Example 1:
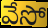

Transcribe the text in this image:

వేసో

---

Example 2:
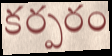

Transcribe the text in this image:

కర్పరం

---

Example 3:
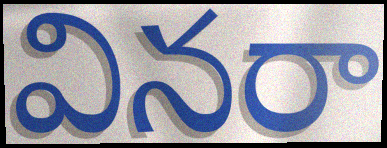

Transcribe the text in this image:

వినరా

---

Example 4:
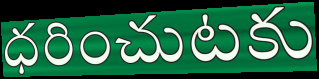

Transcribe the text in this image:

ధరించుటకు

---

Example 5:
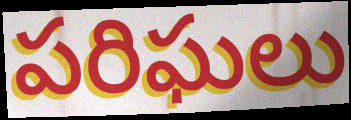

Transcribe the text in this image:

పరిఘలు